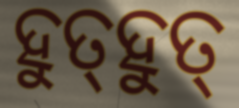
ହୁତ୍‌ହୁତ୍